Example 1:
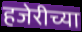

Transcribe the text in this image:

हजेरीच्या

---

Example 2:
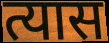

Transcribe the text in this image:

त्यास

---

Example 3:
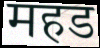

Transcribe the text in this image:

महड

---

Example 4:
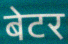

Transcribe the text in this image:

बेटर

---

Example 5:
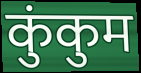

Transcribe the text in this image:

कुंकुम